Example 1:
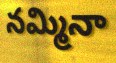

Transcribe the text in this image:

నమ్మినా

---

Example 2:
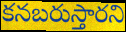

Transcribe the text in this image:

కనబరుస్తారని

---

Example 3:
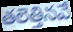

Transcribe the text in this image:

తలెత్తినవే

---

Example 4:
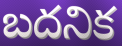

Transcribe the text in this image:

బదనిక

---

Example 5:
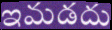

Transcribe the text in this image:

ఇమడదు